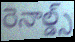
రెనాల్డ్స్